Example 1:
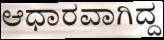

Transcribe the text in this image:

ಆಧಾರವಾಗಿದ್ದ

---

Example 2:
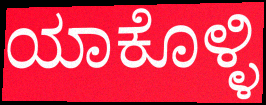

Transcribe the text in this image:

ಯಾಕೊಳ್ಳಿ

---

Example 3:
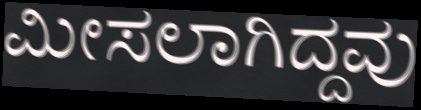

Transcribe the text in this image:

ಮೀಸಲಾಗಿದ್ದವು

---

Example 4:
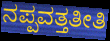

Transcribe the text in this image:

ನಪ್ಪವತ್ತತೀತಿ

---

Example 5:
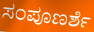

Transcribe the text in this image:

ಸಂಪೂಣರ್ಶೆ